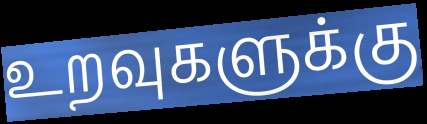
உறவுகளுக்கு